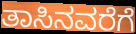
ತಾಸಿನವರೆಗೆ